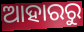
ଆହାରରୁ